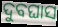
ଦୁବଘାସ